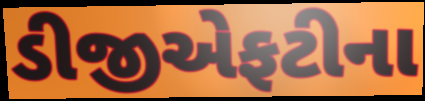
ડીજીએફટીના